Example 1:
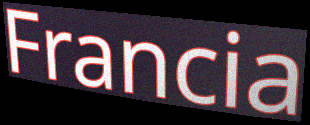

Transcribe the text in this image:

Francia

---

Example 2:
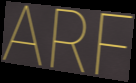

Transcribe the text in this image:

ARF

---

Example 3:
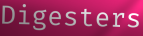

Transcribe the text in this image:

Digesters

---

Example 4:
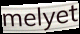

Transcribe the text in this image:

melyet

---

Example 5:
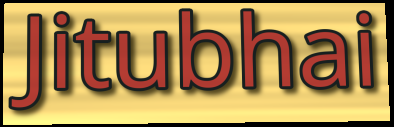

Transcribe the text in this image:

Jitubhai